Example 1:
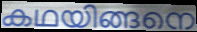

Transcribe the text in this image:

കഥയിങ്ങനെ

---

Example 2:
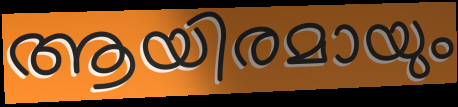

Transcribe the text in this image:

ആയിരമായും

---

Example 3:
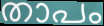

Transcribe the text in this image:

താപം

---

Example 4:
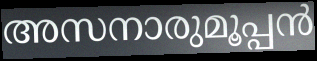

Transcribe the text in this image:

അസനാരുമൂപ്പൻ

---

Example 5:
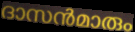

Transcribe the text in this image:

ദാസൻമാരും